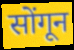
सोंगून